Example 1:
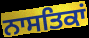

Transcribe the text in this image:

ਨਾਸਤਿਕਾਂ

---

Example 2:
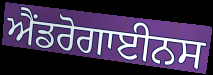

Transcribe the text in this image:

ਐਂਡਰੋਗਾਈਨਸ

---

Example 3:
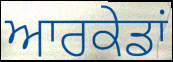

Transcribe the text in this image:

ਆਰਕੇਡਾਂ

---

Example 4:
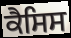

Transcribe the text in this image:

ਕੈਸਿਸ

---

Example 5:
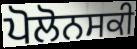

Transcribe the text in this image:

ਪੋਲੋਨਸਕੀ